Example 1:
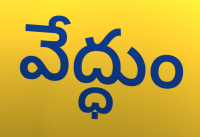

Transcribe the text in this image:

వేద్ధుం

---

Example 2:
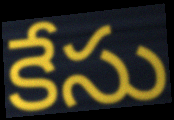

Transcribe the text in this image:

కేసు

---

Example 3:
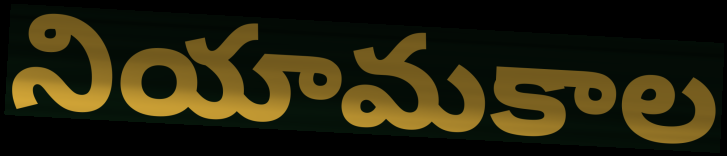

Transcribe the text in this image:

నియామకాల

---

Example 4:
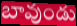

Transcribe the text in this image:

బావుండు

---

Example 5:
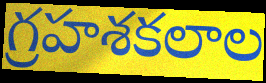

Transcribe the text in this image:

గ్రహశకలాల